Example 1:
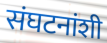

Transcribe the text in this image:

संघटनांशी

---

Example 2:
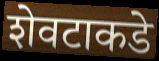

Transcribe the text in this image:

शेवटाकडे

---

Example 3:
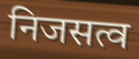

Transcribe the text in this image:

निजसत्व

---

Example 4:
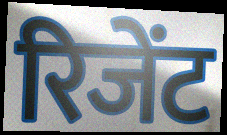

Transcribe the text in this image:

रिजेंट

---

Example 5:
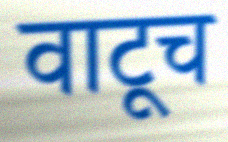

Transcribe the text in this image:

वाटूच